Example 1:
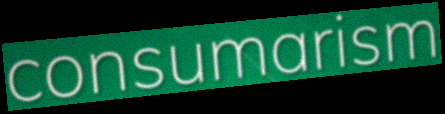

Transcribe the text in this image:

consumarism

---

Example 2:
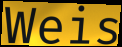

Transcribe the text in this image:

Weis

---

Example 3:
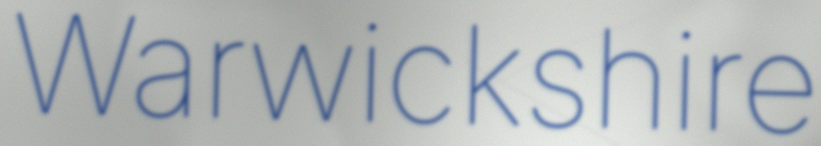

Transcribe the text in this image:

Warwickshire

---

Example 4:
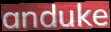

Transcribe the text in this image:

anduke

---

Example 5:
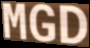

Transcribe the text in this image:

MGD